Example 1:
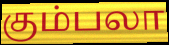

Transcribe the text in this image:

கும்பலா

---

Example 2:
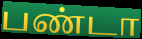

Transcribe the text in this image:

பண்டா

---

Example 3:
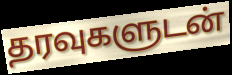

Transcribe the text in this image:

தரவுகளுடன்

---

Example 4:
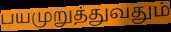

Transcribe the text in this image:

பயமுறுத்துவதும்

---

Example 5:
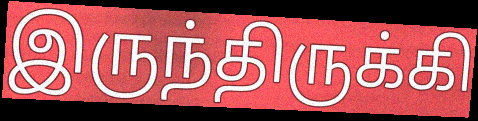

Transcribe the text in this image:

இருந்திருக்கி